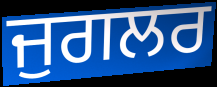
ਜੁਗਲਰ